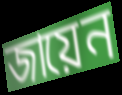
জায়েন